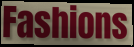
Fashions